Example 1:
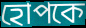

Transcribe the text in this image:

হোপকে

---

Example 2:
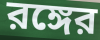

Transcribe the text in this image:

রঙ্গের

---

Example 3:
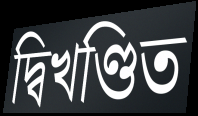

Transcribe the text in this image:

দ্বিখণ্ডিত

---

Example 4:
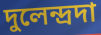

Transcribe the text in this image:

দুলেন্দ্রদা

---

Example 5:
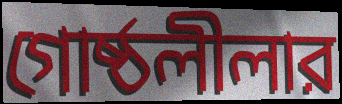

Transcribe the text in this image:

গোষ্ঠলীলার